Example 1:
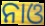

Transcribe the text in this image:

ନାଓ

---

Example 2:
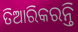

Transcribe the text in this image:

ତିଆରିକରନ୍ତି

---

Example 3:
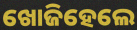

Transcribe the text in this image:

ଖୋଜିହେଲେ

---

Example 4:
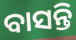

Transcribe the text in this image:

ବାସନ୍ତି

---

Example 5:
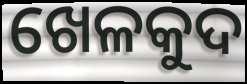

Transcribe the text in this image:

ଖେଳକୁଦ